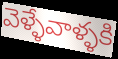
వెళ్ళేవాళ్ళకి